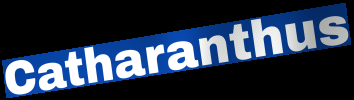
Catharanthus